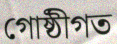
গোষ্ঠীগত